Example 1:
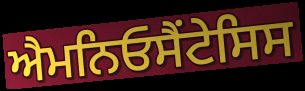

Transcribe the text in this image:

ਐਮਨਿਓਸੈਂਟੇਸਿਸ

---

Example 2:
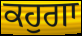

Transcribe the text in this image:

ਕਹੁਗਾ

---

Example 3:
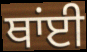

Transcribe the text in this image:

ਥਾਂਈ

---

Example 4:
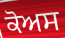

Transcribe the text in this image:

ਕੋਅਸ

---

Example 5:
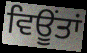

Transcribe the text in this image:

ਵਿਊਂਤਾਂ